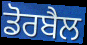
ਡੋਰਬੈਲ